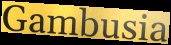
Gambusia